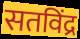
सतविंद्र